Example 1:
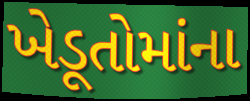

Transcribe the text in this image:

ખેડૂતોમાંના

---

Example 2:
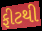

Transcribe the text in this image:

ફીટથી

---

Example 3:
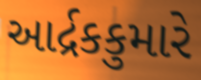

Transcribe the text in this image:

આર્દ્રકકુમારે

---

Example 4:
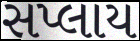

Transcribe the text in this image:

સપ્લાય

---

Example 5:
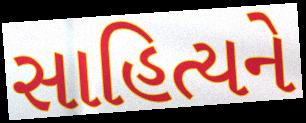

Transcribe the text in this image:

સાહિત્યને